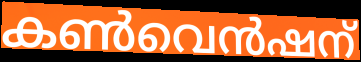
കൺവെൻഷന്